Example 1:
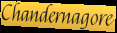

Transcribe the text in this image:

Chandernagore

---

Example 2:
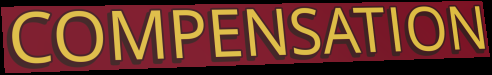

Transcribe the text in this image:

COMPENSATION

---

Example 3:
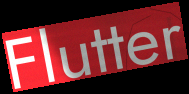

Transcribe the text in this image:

Flutter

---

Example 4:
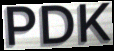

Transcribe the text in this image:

PDK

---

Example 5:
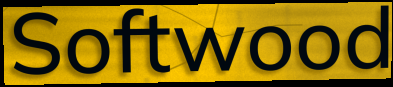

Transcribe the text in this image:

Softwood